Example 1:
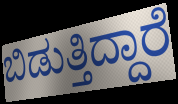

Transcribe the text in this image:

ಬಿಡುತ್ತಿದ್ದಾರೆ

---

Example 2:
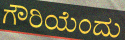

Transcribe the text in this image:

ಗೌರಿಯೆಂದು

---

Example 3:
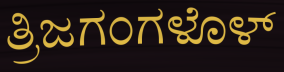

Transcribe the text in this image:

ತ್ರಿಜಗಂಗಳೊಳ್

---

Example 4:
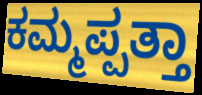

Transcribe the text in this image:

ಕಮ್ಮಪ್ಪತ್ತಾ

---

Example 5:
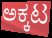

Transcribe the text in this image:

ಅಕ್ಕಟ